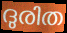
ദുരിത